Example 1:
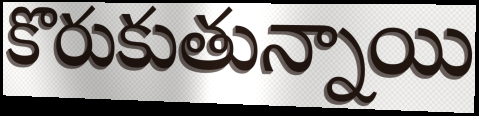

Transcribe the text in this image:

కొరుకుతున్నాయి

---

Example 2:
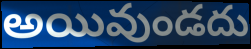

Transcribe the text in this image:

అయివుండదు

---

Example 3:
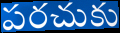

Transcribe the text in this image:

పరచుకు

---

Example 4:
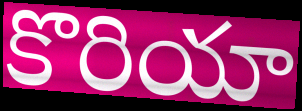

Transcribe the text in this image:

కొరియా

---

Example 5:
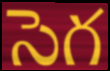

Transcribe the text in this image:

సెగ